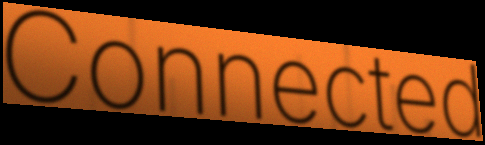
Connected